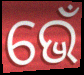
ଭେଁ